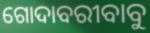
ଗୋଦାବରୀବାବୁ